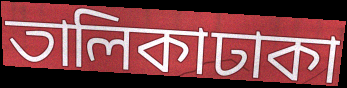
তালিকাঢাকা